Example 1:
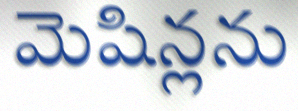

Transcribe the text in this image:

మెషిన్లను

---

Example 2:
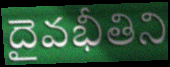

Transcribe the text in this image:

దైవభీతిని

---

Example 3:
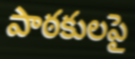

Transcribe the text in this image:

పాఠకులపై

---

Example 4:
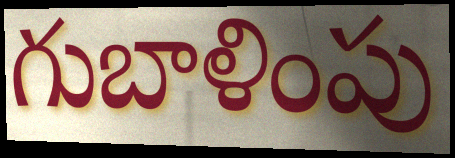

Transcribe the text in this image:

గుబాళింపు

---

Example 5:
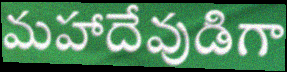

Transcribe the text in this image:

మహాదేవుడిగా